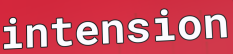
intension